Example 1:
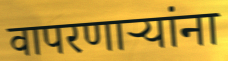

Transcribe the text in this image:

वापरणाऱ्यांना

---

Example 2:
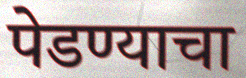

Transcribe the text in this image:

पेडण्याचा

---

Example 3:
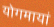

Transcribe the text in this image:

योगमायां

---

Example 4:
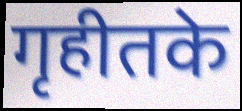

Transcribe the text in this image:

गृहीतके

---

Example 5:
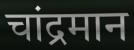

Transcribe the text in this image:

चांद्रमान